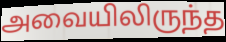
அவையிலிருந்த